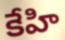
కేహి